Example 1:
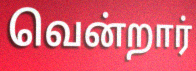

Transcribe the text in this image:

வென்றார்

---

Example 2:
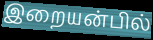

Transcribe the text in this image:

இறையன்பில்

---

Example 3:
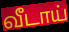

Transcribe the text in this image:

வீடாய்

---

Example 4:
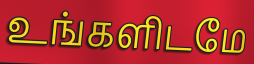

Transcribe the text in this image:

உங்களிடமே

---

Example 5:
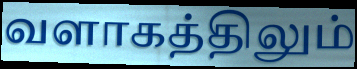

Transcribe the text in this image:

வளாகத்திலும்